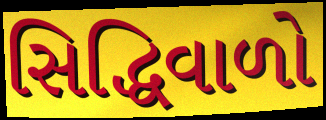
સિદ્ધિવાળો